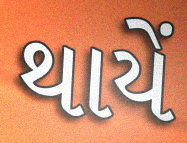
થાયેં